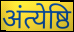
अंत्येष्ठि